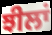
ਝੀਲਾਂ